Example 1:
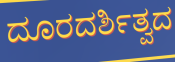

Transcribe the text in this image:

ದೂರದರ್ಶಿತ್ವದ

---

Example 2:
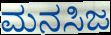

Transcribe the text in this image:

ಮನಸಿಜ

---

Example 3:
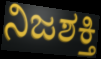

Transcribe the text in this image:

ನಿಜಶಕ್ತಿ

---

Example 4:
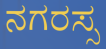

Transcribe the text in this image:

ನಗರಸ್ಸ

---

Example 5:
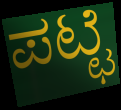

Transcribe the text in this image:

ಪಟ್ಟೆ